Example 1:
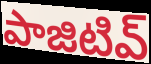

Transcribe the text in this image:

పాజిటివ్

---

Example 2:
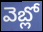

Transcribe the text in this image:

వెబ్లో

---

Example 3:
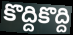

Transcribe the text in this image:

కొద్దికొద్ది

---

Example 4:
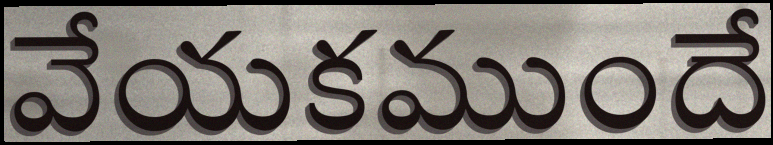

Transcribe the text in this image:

వేయకముందే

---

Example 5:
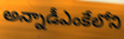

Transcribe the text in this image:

అన్నాడీఎంకేలోని